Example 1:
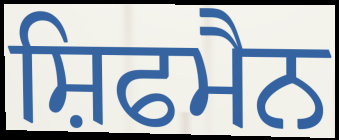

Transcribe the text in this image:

ਸ਼ਿਫਮੈਨ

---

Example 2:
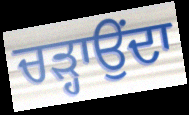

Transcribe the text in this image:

ਚੜ੍ਹਾਉਂਦਾ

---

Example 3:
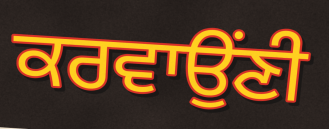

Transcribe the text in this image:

ਕਰਵਾਉਂਣੀ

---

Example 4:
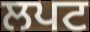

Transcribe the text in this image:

ਲਪਟ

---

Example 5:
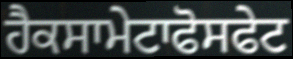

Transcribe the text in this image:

ਹੈਕਸਾਮੇਟਾਫੋਸਫੇਟ